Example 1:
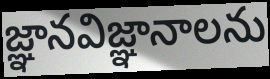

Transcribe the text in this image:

జ్ఞానవిజ్ఞానాలను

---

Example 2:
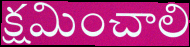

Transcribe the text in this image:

క్షమించాలి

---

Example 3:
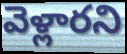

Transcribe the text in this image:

వెళ్లారని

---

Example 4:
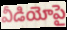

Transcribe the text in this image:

వీడియోపై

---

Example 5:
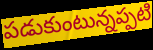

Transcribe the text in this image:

పడుకుంటున్నప్పటి